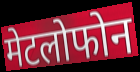
मेटलोफोन